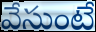
వేసుంటే